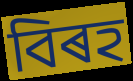
বিৰহ